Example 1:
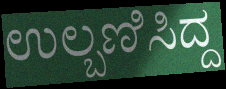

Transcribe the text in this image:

ಉಲ್ಬಣಿಸಿದ್ದ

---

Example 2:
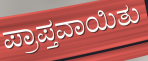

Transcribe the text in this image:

ಪ್ರಾಪ್ತವಾಯಿತು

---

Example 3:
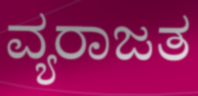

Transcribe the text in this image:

ವ್ಯರಾಜತ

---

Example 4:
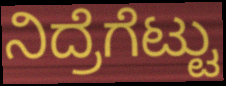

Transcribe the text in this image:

ನಿದ್ರೆಗೆಟ್ಟು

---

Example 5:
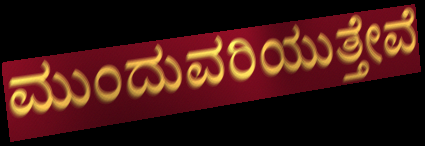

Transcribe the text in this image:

ಮುಂದುವರಿಯುತ್ತೇವೆ